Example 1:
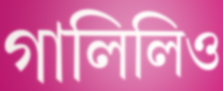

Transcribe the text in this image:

গালিলিও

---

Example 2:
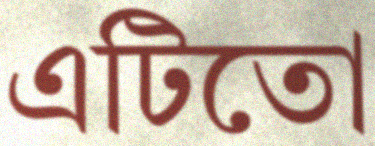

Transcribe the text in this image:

এটিতো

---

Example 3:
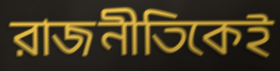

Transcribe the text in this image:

রাজনীতিকেই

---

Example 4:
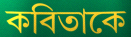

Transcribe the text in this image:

কবিতাকে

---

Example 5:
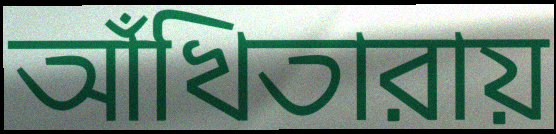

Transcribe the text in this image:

আঁখিতারায়